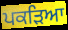
ਪਕੜਿਆ